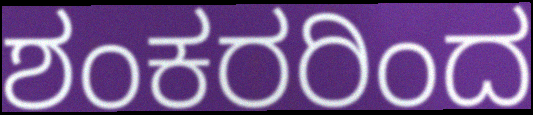
ಶಂಕರರಿಂದ